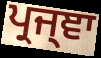
ਪ੍ਰਜ੍ਞਾ